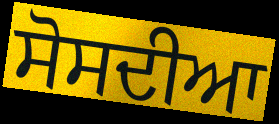
ਸੋਸਦੀਆ